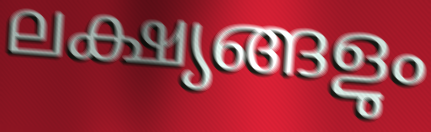
ലക്ഷ്യങ്ങളും